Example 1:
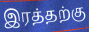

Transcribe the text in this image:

இரத்தற்கு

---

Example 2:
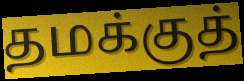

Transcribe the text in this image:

தமக்குத்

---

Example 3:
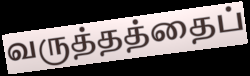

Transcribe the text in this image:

வருத்தத்தைப்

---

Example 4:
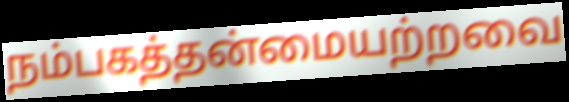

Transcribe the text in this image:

நம்பகத்தன்மையற்றவை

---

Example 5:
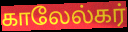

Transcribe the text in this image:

காலேல்கர்